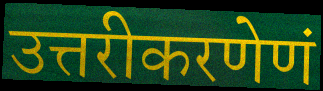
उत्तरीकरणेणं